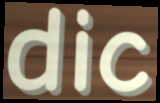
dic